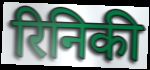
रिनिकी